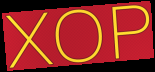
XOP